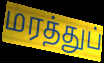
மரத்துப்